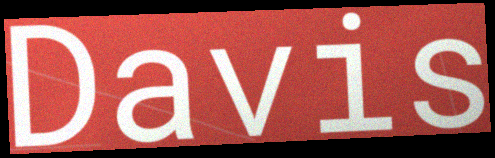
Davis